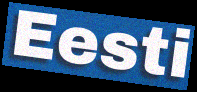
Eesti